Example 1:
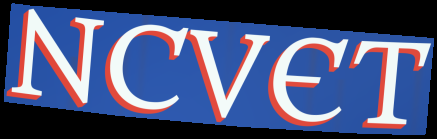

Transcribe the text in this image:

NCVET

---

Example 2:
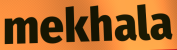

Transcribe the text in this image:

mekhala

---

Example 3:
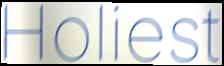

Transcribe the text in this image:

Holiest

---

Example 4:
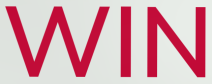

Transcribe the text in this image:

WIN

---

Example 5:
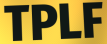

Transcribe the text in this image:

TPLF